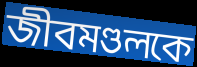
জীবমণ্ডলকে